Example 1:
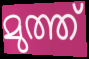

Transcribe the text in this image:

മുത്ത്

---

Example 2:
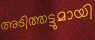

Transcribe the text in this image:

അടിത്തട്ടുമായി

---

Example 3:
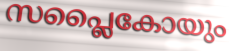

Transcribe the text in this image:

സപ്ലൈകോയും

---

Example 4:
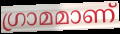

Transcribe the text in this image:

ഗ്രാമമാണ്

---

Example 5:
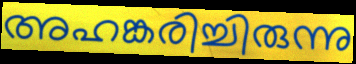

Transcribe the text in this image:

അഹങ്കരിച്ചിരുന്നു